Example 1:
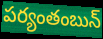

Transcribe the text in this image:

పర్యంతంబున్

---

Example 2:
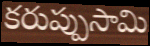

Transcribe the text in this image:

కరుప్పుసామి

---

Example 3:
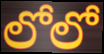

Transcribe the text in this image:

లోలో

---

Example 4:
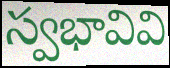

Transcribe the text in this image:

స్వభావివి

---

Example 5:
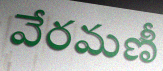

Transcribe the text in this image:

వేరమణీ